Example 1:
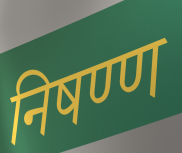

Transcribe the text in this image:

निषण्ण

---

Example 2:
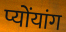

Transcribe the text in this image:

प्योंयांग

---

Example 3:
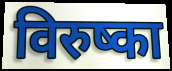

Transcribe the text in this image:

विरुष्का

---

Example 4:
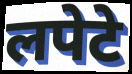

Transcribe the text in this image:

लपेटे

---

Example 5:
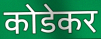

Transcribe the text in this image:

कोडेकर